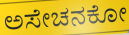
ಅಸೇಚನಕೋ